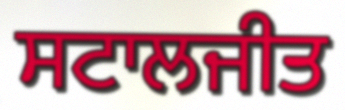
ਸਟਾਲਜੀਤ